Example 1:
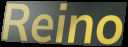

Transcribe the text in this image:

Reino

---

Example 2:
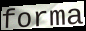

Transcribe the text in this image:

forma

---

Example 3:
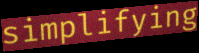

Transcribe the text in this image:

simplifying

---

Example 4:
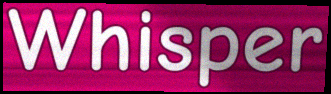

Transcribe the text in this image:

Whisper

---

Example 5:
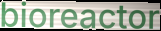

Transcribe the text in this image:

bioreactor